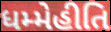
ધમ્મેહીતિ